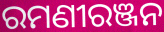
ରମଣୀରଞ୍ଜନ